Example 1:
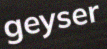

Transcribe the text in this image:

geyser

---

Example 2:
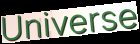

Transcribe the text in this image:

Universe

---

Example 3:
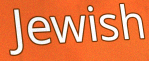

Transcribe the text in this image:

Jewish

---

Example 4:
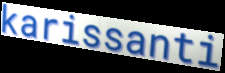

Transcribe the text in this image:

karissanti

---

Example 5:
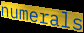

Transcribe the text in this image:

numerals